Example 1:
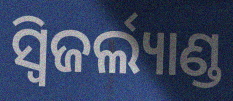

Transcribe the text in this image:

ସ୍ୱିଜର୍ଲ୍ୟାଣ୍ଡ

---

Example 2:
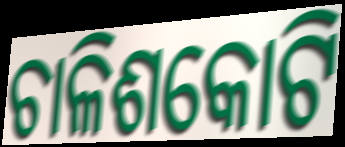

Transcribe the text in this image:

ଚାଳିଶକୋଟି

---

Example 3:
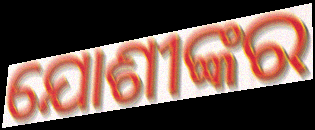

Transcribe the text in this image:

ଯୋଶୀଙ୍କର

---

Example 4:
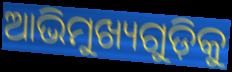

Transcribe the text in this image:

ଆଭିମୁଖ୍ୟଗୁଡ଼ିକୁ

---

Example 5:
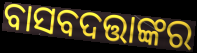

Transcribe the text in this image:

ବାସବଦତ୍ତାଙ୍କର